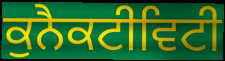
ਕੁਨੈਕਟੀਵਿਟੀ